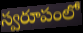
స్వరూపంలో